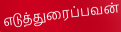
எடுத்துரைப்பவன்